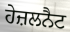
ਹੇਜ਼ਲਨੈਟ